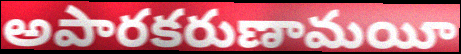
అపారకరుణామయీ